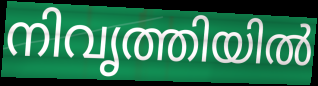
നിവൃത്തിയിൽ